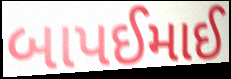
બાપઈમાઈ